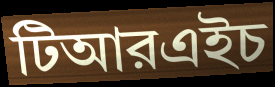
টিআরএইচ